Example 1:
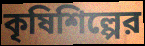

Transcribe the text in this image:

কৃষিশিল্পের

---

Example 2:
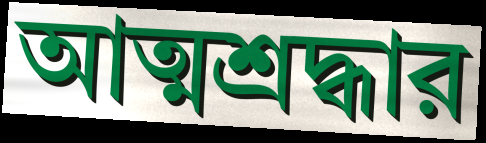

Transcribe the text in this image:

আত্মশ্রদ্ধার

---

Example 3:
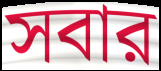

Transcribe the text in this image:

সবার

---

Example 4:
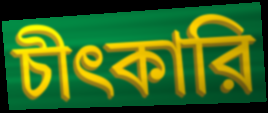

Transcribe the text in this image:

চীৎকারি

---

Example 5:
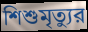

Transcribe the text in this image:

শিশুমৃত্যুর